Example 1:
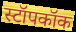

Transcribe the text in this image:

स्टॉपकॉक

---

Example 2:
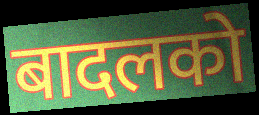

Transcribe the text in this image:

बादलको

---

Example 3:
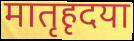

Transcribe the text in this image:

मातृहृदया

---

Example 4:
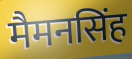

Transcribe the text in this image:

मैमनसिंह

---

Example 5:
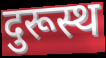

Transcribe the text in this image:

दुरूस्थ